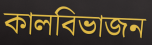
কালবিভাজন